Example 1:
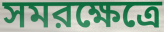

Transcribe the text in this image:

সমরক্ষেত্রে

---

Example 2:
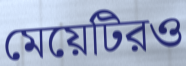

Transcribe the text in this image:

মেয়েটিরও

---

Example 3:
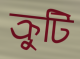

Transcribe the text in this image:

ক্রুটি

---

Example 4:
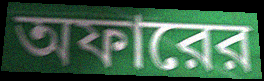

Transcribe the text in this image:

অফারের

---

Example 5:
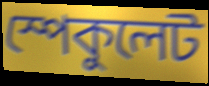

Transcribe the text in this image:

স্পেকুলেট